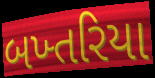
બખ્તરિયા